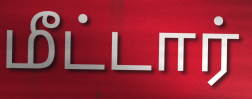
மீட்டார்